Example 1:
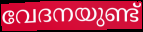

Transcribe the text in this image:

വേദനയുണ്ട്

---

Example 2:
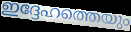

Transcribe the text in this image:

ഇദ്ദേഹത്തെയും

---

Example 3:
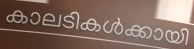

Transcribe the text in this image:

കാലടികൾക്കായി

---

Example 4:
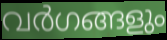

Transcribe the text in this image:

വർഗങ്ങളും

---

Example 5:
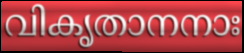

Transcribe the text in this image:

വികൃതാനനാഃ